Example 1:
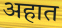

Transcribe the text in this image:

अहात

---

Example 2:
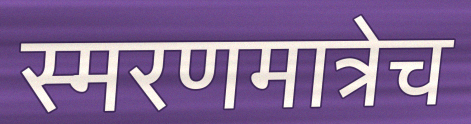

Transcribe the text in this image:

स्मरणमात्रेच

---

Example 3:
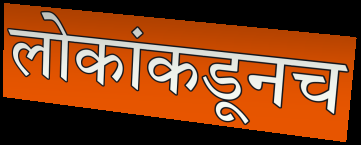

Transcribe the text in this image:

लोकांकडूनच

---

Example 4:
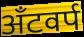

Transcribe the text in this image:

अँटवर्प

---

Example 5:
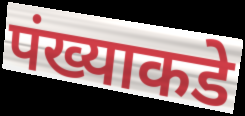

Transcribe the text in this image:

पंख्याकडे